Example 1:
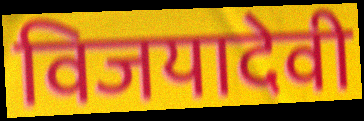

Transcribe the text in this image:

विजयादेवी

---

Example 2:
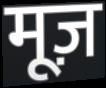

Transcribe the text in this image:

मूज़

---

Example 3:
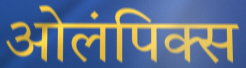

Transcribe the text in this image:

ओलंपिक्‍स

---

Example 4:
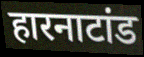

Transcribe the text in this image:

हारनाटांड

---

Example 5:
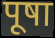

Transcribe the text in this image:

पूषा